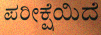
ಪರೀಕ್ಷೆಯಿದೆ